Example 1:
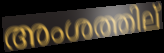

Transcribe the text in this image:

അംശത്തില്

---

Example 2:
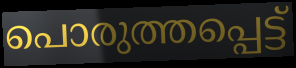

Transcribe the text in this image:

പൊരുത്തപ്പെട്ട്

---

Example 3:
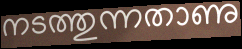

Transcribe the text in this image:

നടത്തുന്നതാണു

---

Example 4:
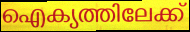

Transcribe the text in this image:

ഐക്യത്തിലേക്ക്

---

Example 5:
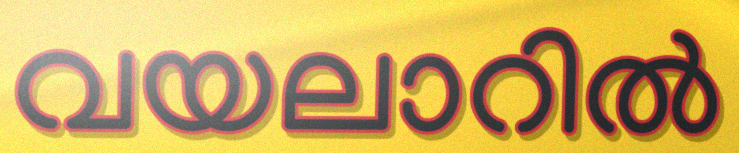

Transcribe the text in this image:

വയലാറിൽ